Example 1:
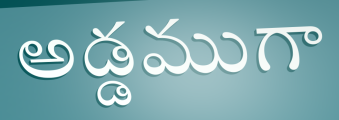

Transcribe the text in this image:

అడ్డముగా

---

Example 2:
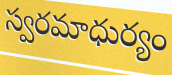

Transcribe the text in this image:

స్వరమాధుర్యం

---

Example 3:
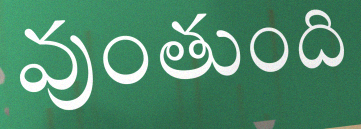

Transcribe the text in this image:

వుంతుంది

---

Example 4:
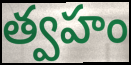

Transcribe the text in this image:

త్వహం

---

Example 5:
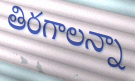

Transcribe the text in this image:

తిరగాలన్నా